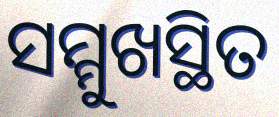
ସମ୍ମୁଖସ୍ଥିତ